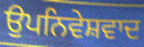
ਉਪਨਿਵੇਸ਼ਵਾਦ